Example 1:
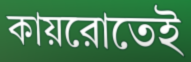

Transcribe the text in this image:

কায়রোতেই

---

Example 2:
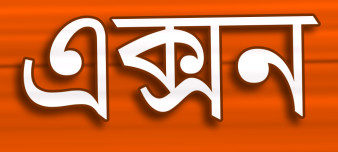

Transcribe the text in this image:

এক্সন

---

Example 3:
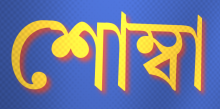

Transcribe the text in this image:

শোম্বা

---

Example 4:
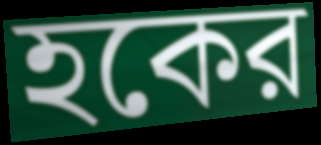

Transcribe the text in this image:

হকের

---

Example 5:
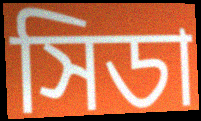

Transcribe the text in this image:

সিডা